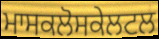
ਮਾਸਕਲੋਸਕੇਲਟਲ